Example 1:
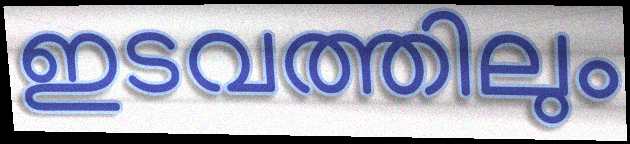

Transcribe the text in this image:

ഇടവത്തിലും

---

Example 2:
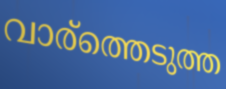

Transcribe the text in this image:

വാര്ത്തെടുത്ത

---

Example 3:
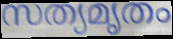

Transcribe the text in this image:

സത്യമൃതം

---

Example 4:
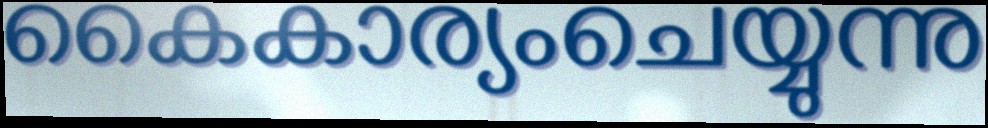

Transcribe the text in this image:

കൈകാര്യംചെയ്യുന്നു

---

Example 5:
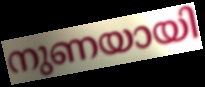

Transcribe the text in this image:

നുണയായി